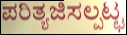
ಪರಿತ್ಯಜಿಸಲ್ಪಟ್ಟ